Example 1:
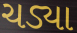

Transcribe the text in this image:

ચડ્યા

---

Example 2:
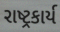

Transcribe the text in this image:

રાષ્ટ્રકાર્ય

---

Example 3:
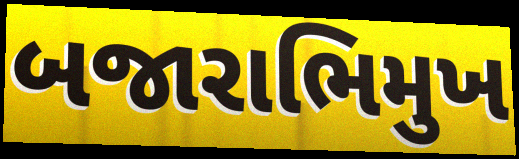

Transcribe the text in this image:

બજારાભિમુખ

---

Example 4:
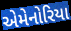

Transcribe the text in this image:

એમેનોરિયા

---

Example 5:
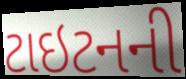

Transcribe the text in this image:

ટાઇટનની